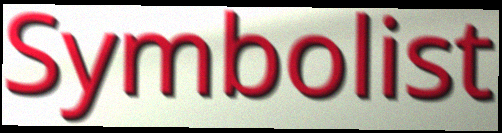
Symbolist